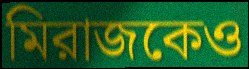
মিরাজকেও